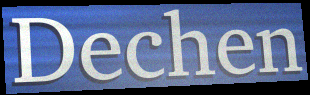
Dechen